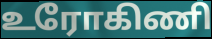
உரோகிணி